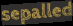
sepalled